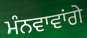
ਮੰਨਵਾਵਾਂਗੇ